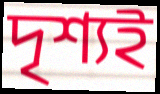
দৃশ্যই